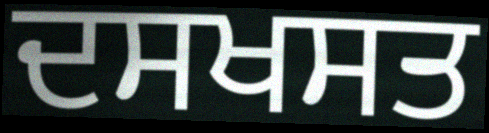
ਦਸਖਸਤ